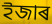
ইজাৰ